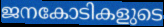
ജനകോടികളുടെ